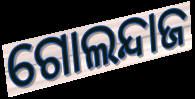
ଗୋଲନ୍ଦାଜ